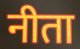
नीता